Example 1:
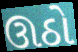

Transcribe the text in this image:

ઊઠો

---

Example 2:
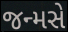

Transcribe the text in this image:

જન્મસે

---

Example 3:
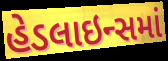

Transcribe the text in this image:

હેડલાઇન્સમાં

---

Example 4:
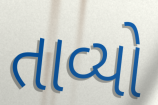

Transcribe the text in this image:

તાવ્યો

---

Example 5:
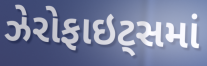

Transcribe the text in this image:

ઝેરોફાઇટ્સમાં